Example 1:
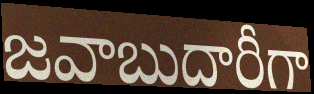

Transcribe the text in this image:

జవాబుదారీగా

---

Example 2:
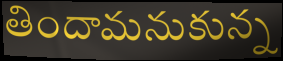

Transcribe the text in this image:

తిందామనుకున్న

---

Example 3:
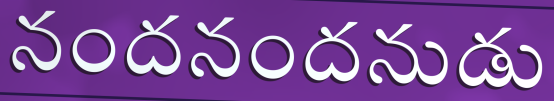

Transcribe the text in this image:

నందనందనుడు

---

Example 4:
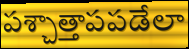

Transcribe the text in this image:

పశ్చాత్తాపపడేలా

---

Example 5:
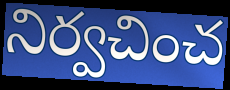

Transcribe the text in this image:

నిర్వచించ